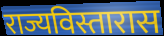
राज्यविस्तारास